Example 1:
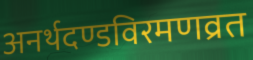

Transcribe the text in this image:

अनर्थदण्डविरमणव्रत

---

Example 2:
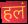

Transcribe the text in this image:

हलं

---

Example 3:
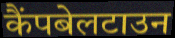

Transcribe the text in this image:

कैंपबेलटाउन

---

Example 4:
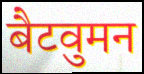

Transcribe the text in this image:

बैटवुमन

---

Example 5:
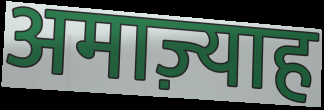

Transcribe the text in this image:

अमाज़्याह